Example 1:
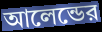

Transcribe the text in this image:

আলেন্ডের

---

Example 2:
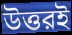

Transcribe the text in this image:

উত্তরই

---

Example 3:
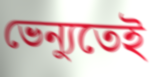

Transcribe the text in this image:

ভেন্যুতেই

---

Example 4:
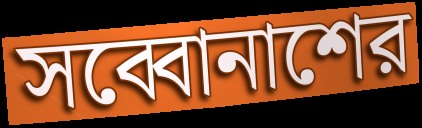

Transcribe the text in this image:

সব্বোনাশের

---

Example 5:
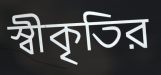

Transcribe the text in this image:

স্বীকৃতির